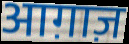
आग़ाज़